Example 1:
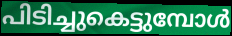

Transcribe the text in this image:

പിടിച്ചുകെട്ടുമ്പോൾ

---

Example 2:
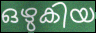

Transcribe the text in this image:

ഒഴുകിയ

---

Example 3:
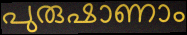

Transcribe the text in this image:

പുരുഷാണാം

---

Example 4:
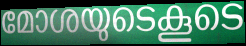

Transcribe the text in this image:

മോശയുടെകൂടെ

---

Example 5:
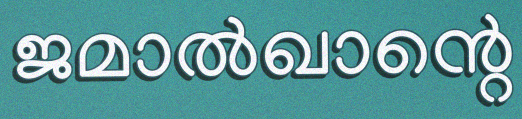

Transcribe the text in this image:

ജമാൽഖാന്റെ